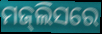
ମଜ୍‌ଲିସରେ